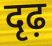
दृढ़